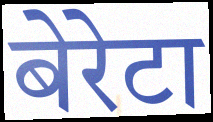
बेरेटा